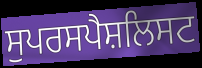
ਸੁਪਰਸਪੈਸ਼ਲਿਸਟ